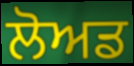
ਲੋਅਡ